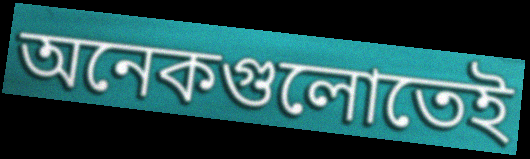
অনেকগুলোতেই